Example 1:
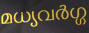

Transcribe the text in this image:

മധ്യവർഗ്ഗ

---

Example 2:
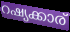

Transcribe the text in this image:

റഷ്യക്കാര്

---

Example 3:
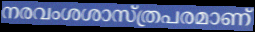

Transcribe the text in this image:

നരവംശശാസ്ത്രപരമാണ്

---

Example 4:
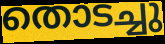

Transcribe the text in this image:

തൊടച്ചു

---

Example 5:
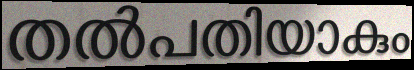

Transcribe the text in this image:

തൽപതിയാകും